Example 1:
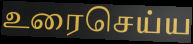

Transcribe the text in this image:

உரைசெய்ய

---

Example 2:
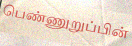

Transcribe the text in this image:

பெண்ணுறுப்பின்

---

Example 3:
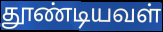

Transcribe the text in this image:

தூண்டியவள்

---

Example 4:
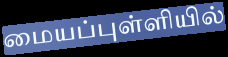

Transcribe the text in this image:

மையப்புள்ளியில்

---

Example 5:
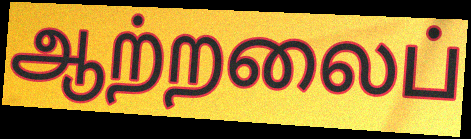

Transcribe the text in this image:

ஆற்றலைப்